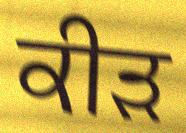
ਕੀੜ